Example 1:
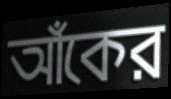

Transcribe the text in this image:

আঁকের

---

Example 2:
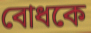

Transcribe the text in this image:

বোধকে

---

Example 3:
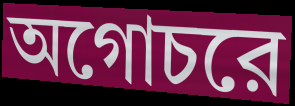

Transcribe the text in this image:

অগোচরে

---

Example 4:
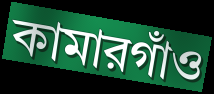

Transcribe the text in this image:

কামারগাঁও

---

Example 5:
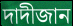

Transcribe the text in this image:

দাদীজান